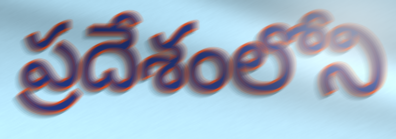
ప్రదేశంలోని